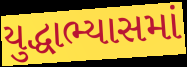
યુદ્ધાભ્યાસમાં